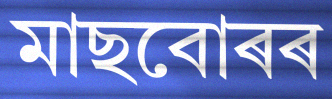
মাছবোৰৰ